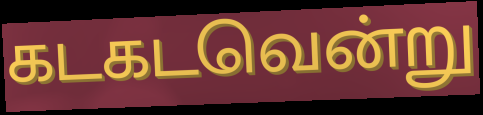
கடகடவென்று